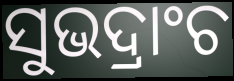
ସୁଭଦ୍ରାଂଚ